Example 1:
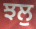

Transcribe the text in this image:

ਝਲੁ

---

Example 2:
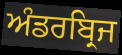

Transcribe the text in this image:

ਅੰਡਰਬ੍ਰਿਜ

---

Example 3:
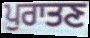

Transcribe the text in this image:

ਪੁਰਾਤਣ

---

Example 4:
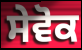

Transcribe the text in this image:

ਸੇਵੋਕ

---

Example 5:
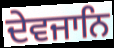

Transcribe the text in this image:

ਦੇਵਜਾਨਿ